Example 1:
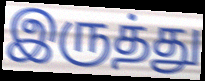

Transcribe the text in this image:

இருத்து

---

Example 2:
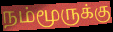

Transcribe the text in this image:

நம்மூருக்கு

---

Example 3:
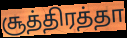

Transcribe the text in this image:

சூத்திரத்தா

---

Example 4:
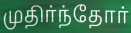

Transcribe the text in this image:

முதிர்ந்தோர்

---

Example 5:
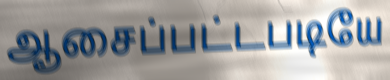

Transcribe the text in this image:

ஆசைப்பட்டபடியே